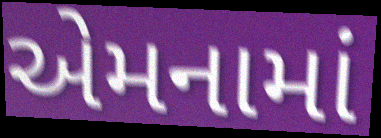
એમનામાં